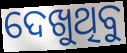
ଦେଖୁଥିବୁ